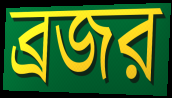
ব্রজর